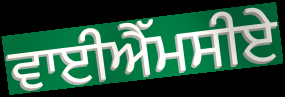
ਵਾਈਐੱਮਸੀਏ